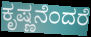
ಕೃಷ್ಣನೆಂದರೆ